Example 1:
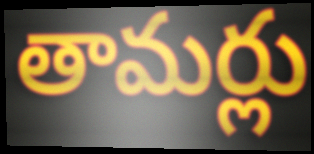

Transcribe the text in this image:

తామర్లు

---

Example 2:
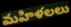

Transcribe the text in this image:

మహిళలలు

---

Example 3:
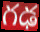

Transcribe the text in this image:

గఢ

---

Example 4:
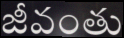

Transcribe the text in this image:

జీవంతు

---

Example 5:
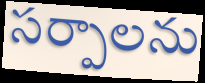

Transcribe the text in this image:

సర్పాలను